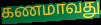
கணமாவது